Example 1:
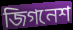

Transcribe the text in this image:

জিগনেশ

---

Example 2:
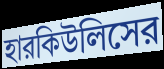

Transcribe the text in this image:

হারকিউলিসের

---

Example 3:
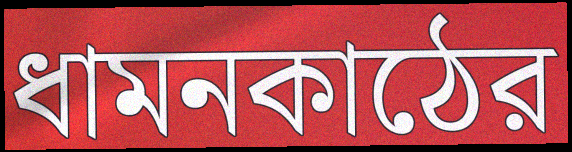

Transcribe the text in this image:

ধামনকাঠের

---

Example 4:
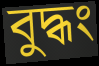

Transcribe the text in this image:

বুদ্ধং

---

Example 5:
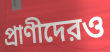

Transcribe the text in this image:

প্রাণীদেরও